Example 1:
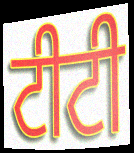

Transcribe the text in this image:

ਟੀਟੀ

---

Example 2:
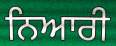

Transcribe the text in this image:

ਨਿਆਰੀ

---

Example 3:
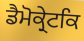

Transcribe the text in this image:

ਡੈਮੋਕ੍ਰੇਟਕਿ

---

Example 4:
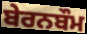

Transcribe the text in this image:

ਬੇਰਨਬੌਮ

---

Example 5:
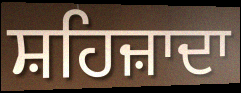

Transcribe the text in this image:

ਸ਼ਹਿਜ਼ਾਦਾ